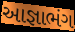
આજ્ઞાભંગ